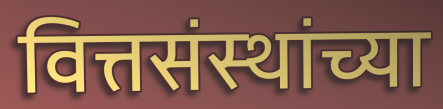
वित्तसंस्थांच्या